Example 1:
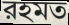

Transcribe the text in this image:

রহমত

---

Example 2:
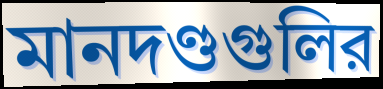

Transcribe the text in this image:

মানদণ্ডগুলির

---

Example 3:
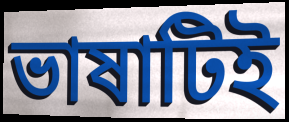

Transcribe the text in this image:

ভাষাটিই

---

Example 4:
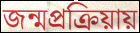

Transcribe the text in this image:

জন্মপ্রক্রিয়ায়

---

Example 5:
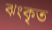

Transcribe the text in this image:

ঝংকৃত